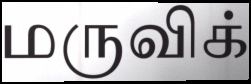
மருவிக்